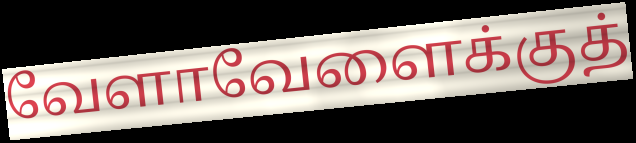
வேளாவேளைக்குத்